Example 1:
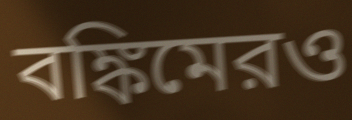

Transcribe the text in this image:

বঙ্কিমেরও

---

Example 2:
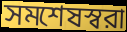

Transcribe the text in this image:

সমশেষস্বরা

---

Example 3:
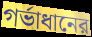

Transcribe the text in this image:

গর্ভাধানের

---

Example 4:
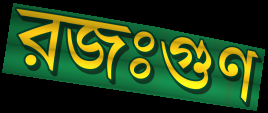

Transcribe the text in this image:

রজঃগুণ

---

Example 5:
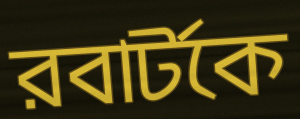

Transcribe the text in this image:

রবার্টকে